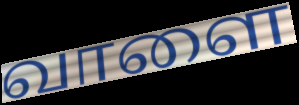
வாளை